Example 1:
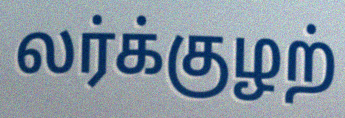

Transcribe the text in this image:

லர்க்குழற்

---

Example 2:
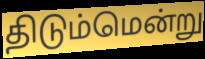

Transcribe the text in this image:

திடும்மென்று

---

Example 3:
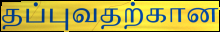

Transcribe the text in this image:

தப்புவதற்கான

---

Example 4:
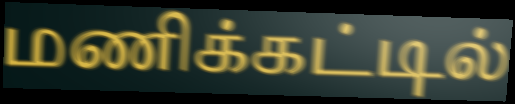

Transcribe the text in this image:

மணிக்கட்டில்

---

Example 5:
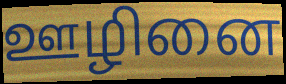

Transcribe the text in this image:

ஊழினை